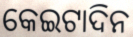
କେଇଟାଦିନ